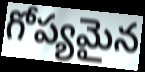
గోప్యమైన